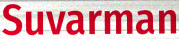
Suvarman